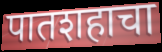
पातशहाचा